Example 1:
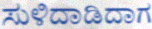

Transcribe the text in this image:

ಸುಳಿದಾಡಿದಾಗ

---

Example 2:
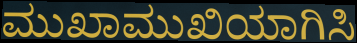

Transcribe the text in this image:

ಮುಖಾಮುಖಿಯಾಗಿಸಿ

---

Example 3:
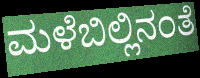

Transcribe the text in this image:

ಮಳೆಬಿಲ್ಲಿನಂತೆ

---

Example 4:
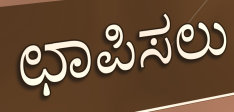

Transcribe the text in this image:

ಛಾಪಿಸಲು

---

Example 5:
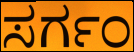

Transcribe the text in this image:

ಸರ್ಗಂ